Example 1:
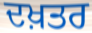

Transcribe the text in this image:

ਦਖ਼ਤਰ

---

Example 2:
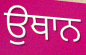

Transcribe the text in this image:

ਉਥਾਨ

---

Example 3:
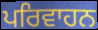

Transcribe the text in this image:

ਪਰਿਵਾਹਨ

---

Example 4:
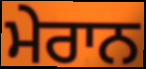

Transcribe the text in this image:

ਮੇਰਾਨ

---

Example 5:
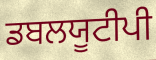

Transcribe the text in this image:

ਡਬਲਯੂਟੀਪੀ